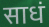
साधं